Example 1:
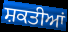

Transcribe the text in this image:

ਸ਼ਕਤੀਆਂ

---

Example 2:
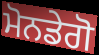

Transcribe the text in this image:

ਮੋਨਡੇਗੋ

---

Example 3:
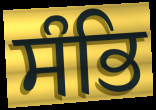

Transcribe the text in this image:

ਸੰਭਿ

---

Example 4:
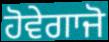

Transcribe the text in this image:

ਹੋਵੇਗਾਜੋ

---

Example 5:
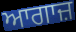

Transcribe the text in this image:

ਆਗਾਜ਼